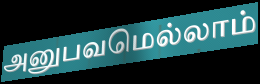
அனுபவமெல்லாம்